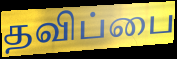
தவிப்பை